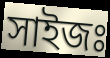
সাইজঃ